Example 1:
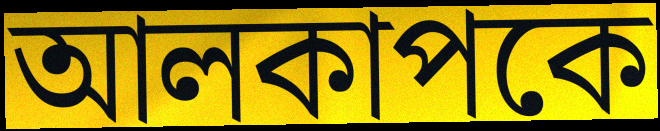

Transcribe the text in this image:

আলকাপকে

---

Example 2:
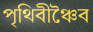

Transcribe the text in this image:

পৃথিবীঞ্চৈব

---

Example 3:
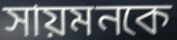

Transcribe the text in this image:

সায়মনকে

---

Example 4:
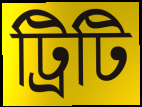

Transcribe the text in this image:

ট্রিটি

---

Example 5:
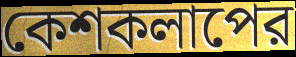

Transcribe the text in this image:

কেশকলাপের